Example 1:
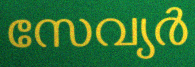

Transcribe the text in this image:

സേവ്യർ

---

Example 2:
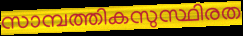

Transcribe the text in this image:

സാമ്പത്തികസുസ്ഥിരത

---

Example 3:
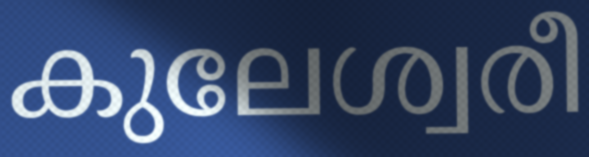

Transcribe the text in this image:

കുലേശ്വരീ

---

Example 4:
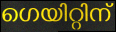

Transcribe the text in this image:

ഗെയിറ്റിന്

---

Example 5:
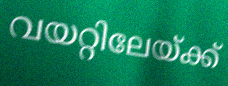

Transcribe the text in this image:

വയറ്റിലേയ്ക്ക്